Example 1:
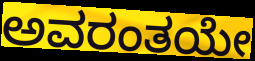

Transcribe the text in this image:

ಅವರಂತಯೇ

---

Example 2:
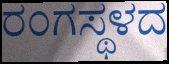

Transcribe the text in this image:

ರಂಗಸ್ಥಳದ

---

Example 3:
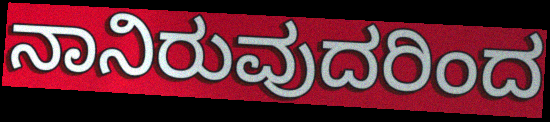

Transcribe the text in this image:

ನಾನಿರುವುದರಿಂದ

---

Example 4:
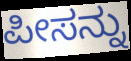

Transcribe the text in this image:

ಪೀಸನ್ನು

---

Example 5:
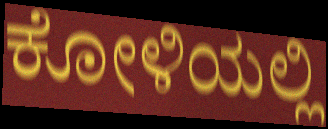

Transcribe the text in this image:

ಕೋಳಿಯಲ್ಲಿ